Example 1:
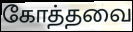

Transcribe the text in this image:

கோத்தவை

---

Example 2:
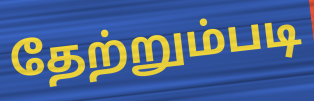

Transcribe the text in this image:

தேற்றும்படி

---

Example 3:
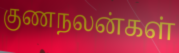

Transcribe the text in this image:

குணநலன்கள்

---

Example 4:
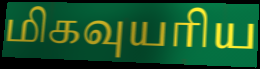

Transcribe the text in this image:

மிகவுயரிய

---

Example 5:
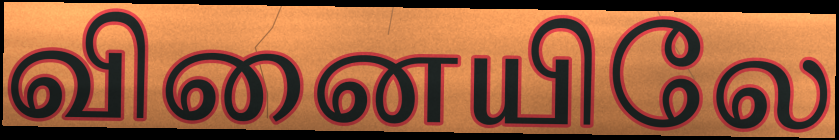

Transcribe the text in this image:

வினையிலே